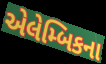
એલેમ્બિકના